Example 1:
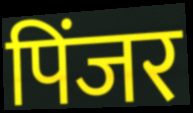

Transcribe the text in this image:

पिंजर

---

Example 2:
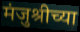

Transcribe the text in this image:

मंजुश्रीच्या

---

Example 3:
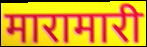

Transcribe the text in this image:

मारामारी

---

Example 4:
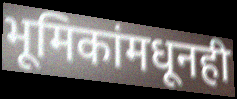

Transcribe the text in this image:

भूमिकांमधूनही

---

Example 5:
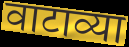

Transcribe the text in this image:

वाटाव्या